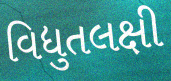
વિદ્યુતલક્ષી